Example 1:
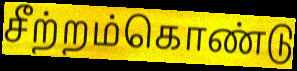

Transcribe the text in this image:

சீற்றம்கொண்டு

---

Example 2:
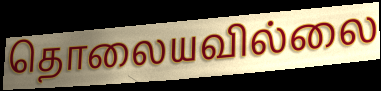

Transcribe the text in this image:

தொலையவில்லை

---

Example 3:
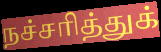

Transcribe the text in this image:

நச்சரித்துக்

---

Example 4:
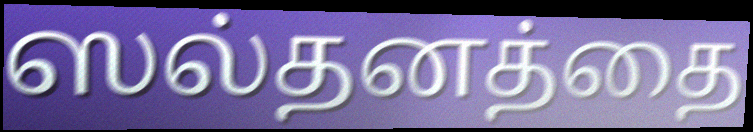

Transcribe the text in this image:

ஸல்தனத்தை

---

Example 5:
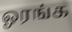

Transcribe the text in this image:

ஓரங்க